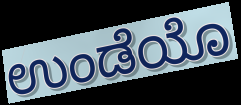
ಉಂಡೆಯೊ